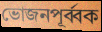
ভোজনপূর্ব্বক